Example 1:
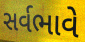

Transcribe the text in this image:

સર્વભાવે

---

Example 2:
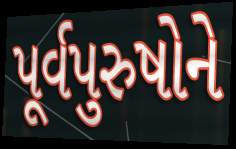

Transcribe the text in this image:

પૂર્વપુરુષોને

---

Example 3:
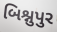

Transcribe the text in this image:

બિશ્નુપુર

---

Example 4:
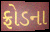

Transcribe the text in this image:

ફ્રોડના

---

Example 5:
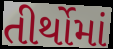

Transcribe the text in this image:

તીર્થોમાં